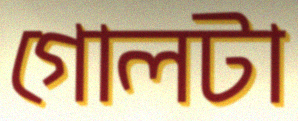
গোলটা